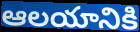
ఆలయానికి